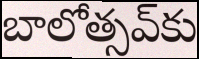
బాలోత్సవ్‌కు